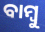
ବାମ୍ବୁ